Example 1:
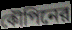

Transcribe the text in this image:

কৌপিনের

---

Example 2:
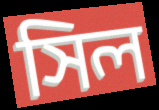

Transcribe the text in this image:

সিল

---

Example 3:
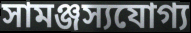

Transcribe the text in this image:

সামঞ্জস্যযোগ্য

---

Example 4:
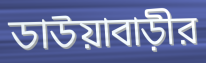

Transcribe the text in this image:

ডাউয়াবাড়ীর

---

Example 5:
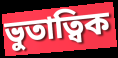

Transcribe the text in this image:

ভুতাত্বিক